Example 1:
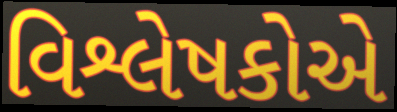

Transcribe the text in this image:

વિશ્લેષકોએ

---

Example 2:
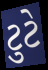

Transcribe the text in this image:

ટુટે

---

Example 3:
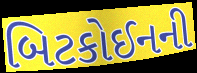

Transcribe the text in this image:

બિટકોઈનની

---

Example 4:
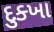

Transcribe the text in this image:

દુક્ખા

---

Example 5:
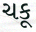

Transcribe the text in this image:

ચકૂ